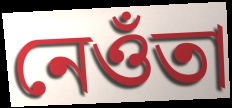
নেওঁতা